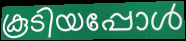
കൂടിയപ്പോൾ